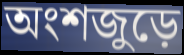
অংশজুড়ে